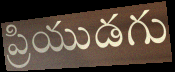
ప్రియుడగు